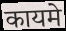
कायमे